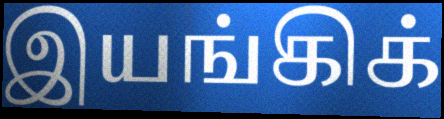
இயங்கிக்